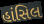
હાંસિલ